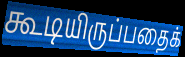
கூடியிருப்பதைக்